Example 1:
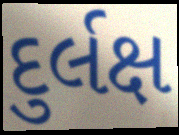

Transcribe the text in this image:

દુર્લક્ષ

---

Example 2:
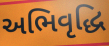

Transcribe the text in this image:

અભિવૃદ્ધિ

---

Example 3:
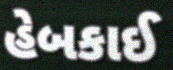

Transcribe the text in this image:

હેબકાઈ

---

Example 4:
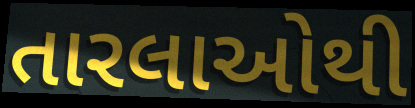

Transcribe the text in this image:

તારલાઓથી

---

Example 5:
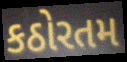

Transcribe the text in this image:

કઠોરતમ